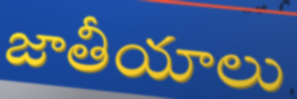
జాతీయాలు